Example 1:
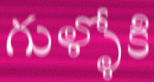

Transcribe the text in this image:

గుళ్ళోకి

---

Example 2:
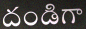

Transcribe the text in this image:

దండిగా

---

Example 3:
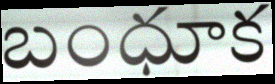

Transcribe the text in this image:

బంధూక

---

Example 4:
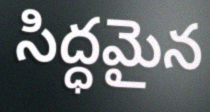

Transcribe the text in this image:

సిద్ధమైన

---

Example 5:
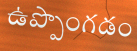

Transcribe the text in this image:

ఉప్పొంగడం